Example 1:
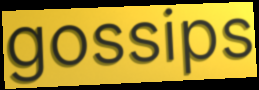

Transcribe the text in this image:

gossips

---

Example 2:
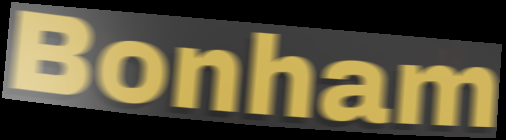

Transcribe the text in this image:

Bonham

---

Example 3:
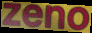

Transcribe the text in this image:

zeno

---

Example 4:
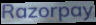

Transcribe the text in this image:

Razorpay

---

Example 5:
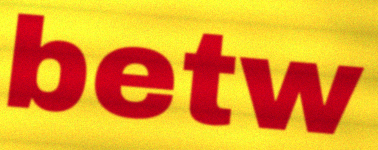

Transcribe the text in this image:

betw